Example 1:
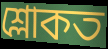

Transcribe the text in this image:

শ্লোকত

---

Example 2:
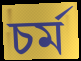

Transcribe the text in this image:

চৰ্ম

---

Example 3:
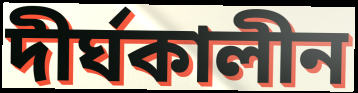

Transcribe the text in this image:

দীৰ্ঘকালীন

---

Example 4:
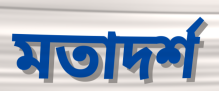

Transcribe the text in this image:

মতাদৰ্শ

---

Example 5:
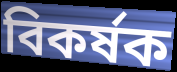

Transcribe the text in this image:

বিকৰ্ষক